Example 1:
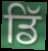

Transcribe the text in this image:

ਡਿੱ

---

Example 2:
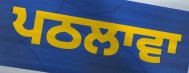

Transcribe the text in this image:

ਪਠਲਾਵਾ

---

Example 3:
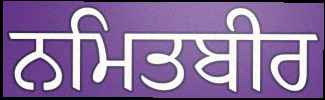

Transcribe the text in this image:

ਨਮਿਤਬੀਰ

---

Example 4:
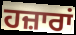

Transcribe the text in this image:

ਹਜ਼ਾਰਾਂ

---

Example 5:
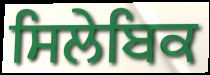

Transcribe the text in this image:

ਸਿਲੇਬਿਕ